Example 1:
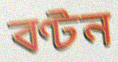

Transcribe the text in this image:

বণ্টন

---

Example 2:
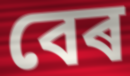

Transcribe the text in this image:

বেৰ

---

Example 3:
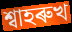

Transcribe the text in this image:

শ্বাহৰুখ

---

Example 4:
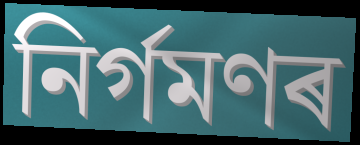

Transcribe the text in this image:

নিৰ্গমণৰ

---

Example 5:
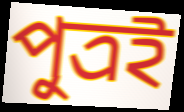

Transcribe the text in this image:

পুত্ৰই